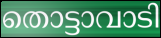
തൊട്ടാവാടി